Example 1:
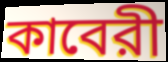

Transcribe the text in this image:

কাবেরী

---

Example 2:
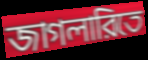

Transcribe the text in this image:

জাগলারিতে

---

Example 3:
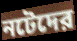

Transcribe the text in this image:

নটেদের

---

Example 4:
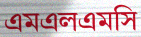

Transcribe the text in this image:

এমএলএমসি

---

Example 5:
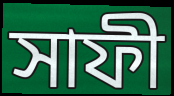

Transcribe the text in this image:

সাফী